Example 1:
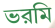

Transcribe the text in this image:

ভরমি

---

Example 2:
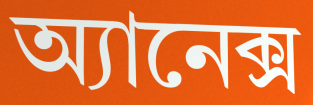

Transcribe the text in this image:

অ্যানেক্স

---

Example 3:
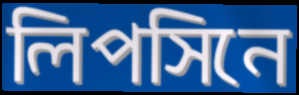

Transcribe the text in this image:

লিপসিনে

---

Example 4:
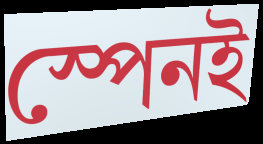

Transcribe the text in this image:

স্পেনই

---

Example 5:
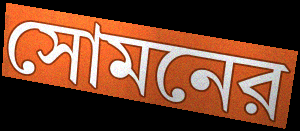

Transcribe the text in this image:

সোমনের